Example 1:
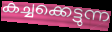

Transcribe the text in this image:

കച്ചക്കെട്ടുന്ന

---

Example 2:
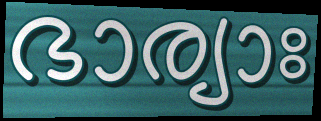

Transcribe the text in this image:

ഭാര്യാഃ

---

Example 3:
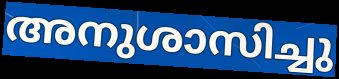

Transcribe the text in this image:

അനുശാസിച്ചു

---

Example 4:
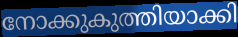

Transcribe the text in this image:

നോക്കുകുത്തിയാക്കി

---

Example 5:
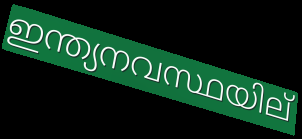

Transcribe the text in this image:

ഇന്ത്യനവസ്ഥയില്